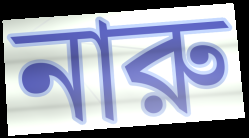
নারু